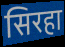
सिरहा